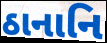
ઠાનાનિ